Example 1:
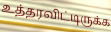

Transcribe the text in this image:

உத்தரவிட்டிருக்க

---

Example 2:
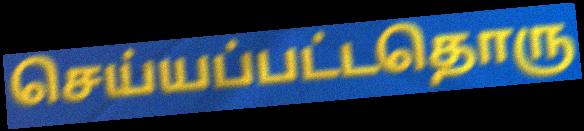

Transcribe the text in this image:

செய்யப்பட்டதொரு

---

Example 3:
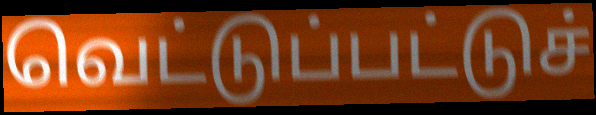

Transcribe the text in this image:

வெட்டுப்பட்டுச்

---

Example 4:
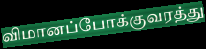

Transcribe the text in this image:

விமானப்போக்குவரத்து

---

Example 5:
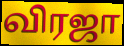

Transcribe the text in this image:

விரஜா